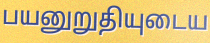
பயனுறுதியுடைய